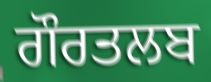
ਗੌਰਤਲਬ